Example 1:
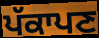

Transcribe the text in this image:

ਪੱਕਾਪਣ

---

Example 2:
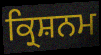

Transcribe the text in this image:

ਕ੍ਰਿਸ਼ਨਮ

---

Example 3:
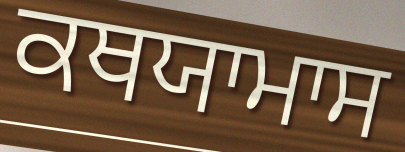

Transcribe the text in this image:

ਕਥਯਾਮਾਸ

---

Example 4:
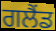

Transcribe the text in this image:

ਗਲੈਂਡ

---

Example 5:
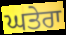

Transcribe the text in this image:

ਘਤੇਰਾ